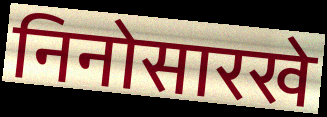
निनोसारखे